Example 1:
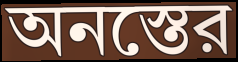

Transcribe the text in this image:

অনস্তের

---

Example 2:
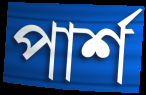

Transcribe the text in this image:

পার্শ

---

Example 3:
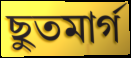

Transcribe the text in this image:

ছুতমার্গ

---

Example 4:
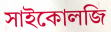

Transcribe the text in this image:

সাইকোলজি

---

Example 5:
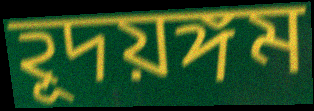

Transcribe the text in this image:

হূদয়ঙ্গম